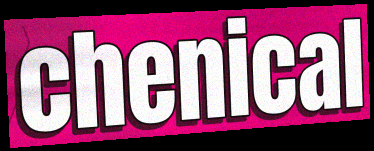
chenical